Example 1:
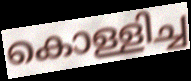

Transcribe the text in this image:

കൊള്ളിച്ച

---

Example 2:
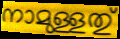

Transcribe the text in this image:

നാമുള്ളതു്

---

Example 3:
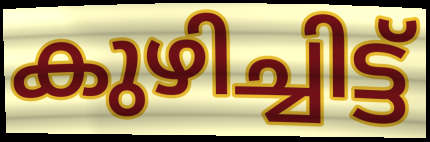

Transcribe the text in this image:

കുഴിച്ചിട്ട്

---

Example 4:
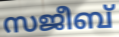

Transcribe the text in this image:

സജീബ്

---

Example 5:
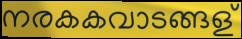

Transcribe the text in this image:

നരകകവാടങ്ങള്